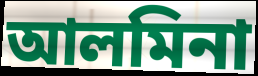
আলমিনা